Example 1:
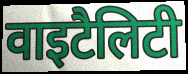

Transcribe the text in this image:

वाइटैलिटी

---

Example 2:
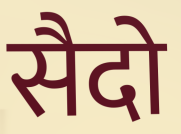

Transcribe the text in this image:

सैदो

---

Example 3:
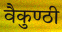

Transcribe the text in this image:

वैकुण्ठी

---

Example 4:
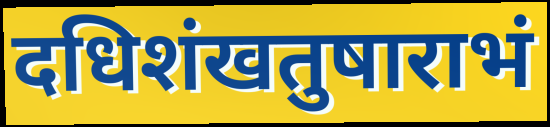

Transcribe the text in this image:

दधिशंखतुषाराभं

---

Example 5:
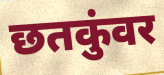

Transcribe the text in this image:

छतकुंवर